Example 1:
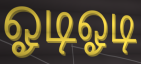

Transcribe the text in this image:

ஓடிஓடி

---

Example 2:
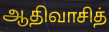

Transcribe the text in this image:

ஆதிவாசித்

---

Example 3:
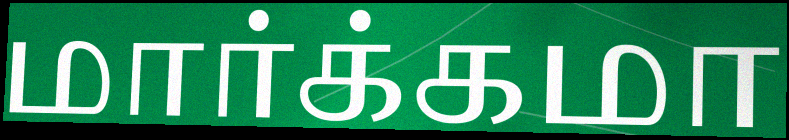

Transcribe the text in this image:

மார்க்கமா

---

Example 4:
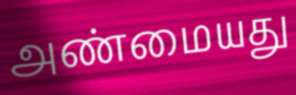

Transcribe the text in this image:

அண்மையது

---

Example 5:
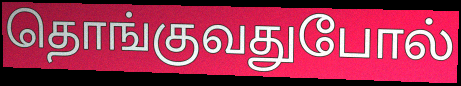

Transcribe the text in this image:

தொங்குவதுபோல்